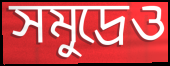
সমুদ্রেও